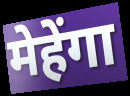
मेहेंगा